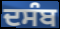
ਦਸੰਬ